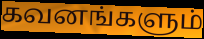
கவனங்களும்